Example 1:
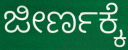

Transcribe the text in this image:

ಜೀರ್ಣಕ್ಕೆ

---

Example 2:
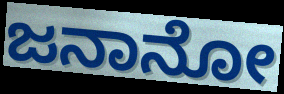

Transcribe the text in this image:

ಜನಾನೋ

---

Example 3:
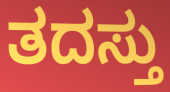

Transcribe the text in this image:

ತದಸ್ತು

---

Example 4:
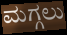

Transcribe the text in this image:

ಮಗ್ಗಲು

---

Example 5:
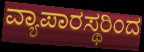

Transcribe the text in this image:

ವ್ಯಾಪಾರಸ್ಥರಿಂದ